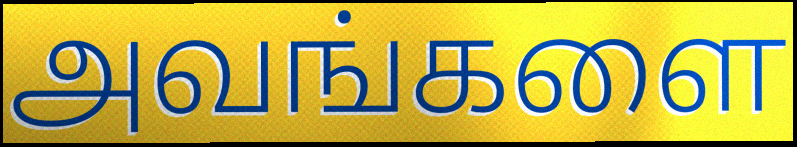
அவங்களை